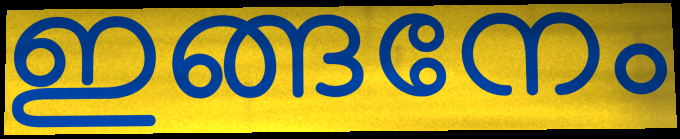
ഇങ്ങനേം